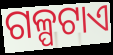
ଗଳ୍ପଟାଏ